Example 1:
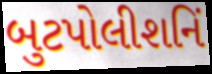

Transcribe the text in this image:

બુટપોલીશનિં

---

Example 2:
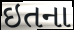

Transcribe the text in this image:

ઇતના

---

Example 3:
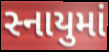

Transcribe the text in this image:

સ્નાયુમાં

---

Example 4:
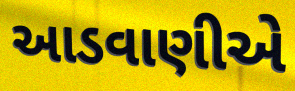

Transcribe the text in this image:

આડવાણીએ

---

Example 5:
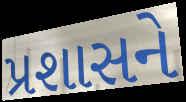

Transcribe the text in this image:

પ્રશાસને